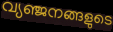
വ്യഞ്ജനങ്ങളുടെ